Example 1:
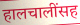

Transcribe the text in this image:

हालचालींसह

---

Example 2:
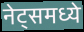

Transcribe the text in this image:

नेट्समध्ये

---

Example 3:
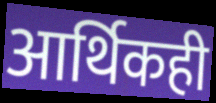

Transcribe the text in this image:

आर्थिकही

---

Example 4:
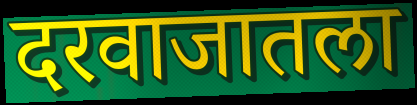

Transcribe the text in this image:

दरवाजातला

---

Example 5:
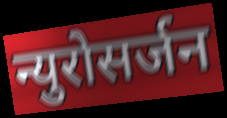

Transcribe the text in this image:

न्युरोसर्जन